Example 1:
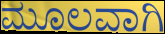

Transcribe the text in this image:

ಮೂಲವಾಗಿ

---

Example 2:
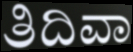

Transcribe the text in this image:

ತಿದಿವಾ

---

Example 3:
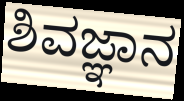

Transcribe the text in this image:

ಶಿವಜ್ಞಾನ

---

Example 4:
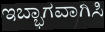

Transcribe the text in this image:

ಇಬ್ಭಾಗವಾಗಿಸಿ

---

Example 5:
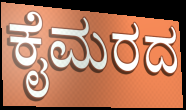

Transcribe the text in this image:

ಕೈಮರದ